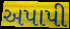
અપાપી